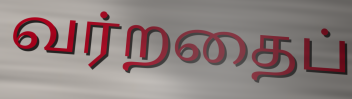
வர்றதைப்